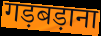
गड़बड़ाना